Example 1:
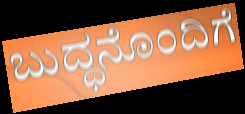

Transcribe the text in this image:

ಬುದ್ಧನೊಂದಿಗೆ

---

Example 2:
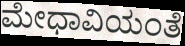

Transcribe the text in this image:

ಮೇಧಾವಿಯಂತೆ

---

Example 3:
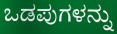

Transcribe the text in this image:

ಒಡಪುಗಳನ್ನು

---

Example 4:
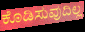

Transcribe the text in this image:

ಕೊಡಿಸುವುದಿಲ್ಲ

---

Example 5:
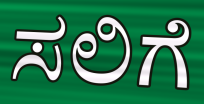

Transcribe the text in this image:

ಸಲಿಗೆ